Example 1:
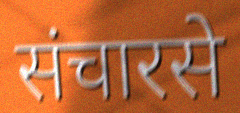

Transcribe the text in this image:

संचारसे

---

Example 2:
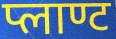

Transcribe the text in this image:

प्लाण्ट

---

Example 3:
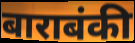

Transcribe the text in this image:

बाराबंकी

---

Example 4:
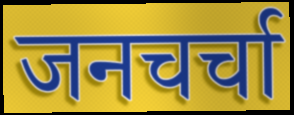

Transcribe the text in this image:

जनचर्चा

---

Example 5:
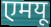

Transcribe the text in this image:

एमयू